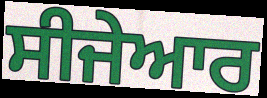
ਸੀਜੇਆਰ